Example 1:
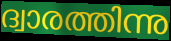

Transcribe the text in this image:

ദ്വാരത്തിന്നു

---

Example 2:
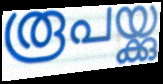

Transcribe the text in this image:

രൂപയ്ക്കു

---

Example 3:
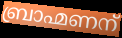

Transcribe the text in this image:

ബ്രാഹ്മണന്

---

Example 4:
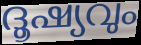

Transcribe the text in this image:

ദൂഷ്യവും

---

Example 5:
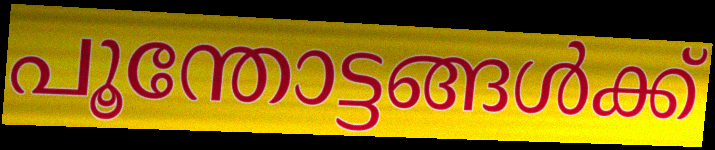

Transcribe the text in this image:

പൂന്തോട്ടങ്ങൾക്ക്